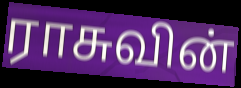
ராசுவின்